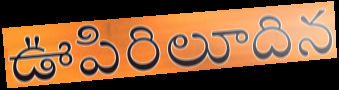
ఊపిరిలూదిన